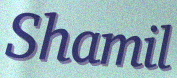
Shamil